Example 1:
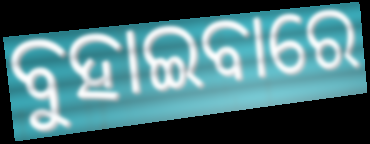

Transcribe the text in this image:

ବୁହାଇବାରେ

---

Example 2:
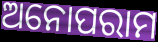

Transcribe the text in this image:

ଅନୋପରାମ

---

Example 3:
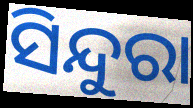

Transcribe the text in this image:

ସିନ୍ଦୁରା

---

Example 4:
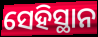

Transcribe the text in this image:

ସେହିସ୍ଥାନ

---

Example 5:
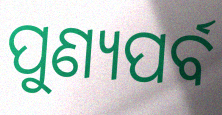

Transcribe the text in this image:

ପୁଣ୍ୟପର୍ବ